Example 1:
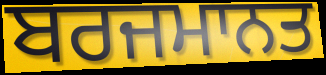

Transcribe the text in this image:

ਬਰਜਮਾਨਤ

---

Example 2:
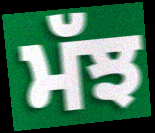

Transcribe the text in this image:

ਮੱਝ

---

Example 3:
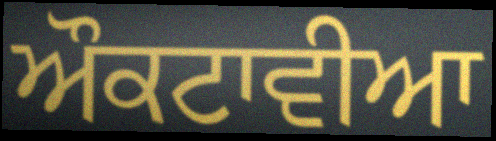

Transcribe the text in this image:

ਔਕਟਾਵੀਆ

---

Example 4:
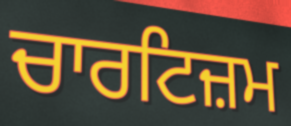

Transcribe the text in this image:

ਚਾਰਟਿਜ਼ਮ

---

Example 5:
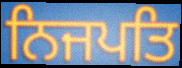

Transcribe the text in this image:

ਨਿਜਪਤਿ